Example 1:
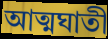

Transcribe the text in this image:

আত্মঘাতী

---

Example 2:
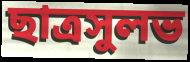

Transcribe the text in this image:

ছাত্রসুলভ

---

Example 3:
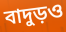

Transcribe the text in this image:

বাদুড়ও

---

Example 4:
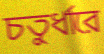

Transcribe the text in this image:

চতুর্ধারে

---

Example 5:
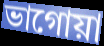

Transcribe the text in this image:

ভাগোয়া